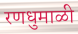
रणधुमाळी